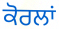
ਕੋਰਲਾਂ